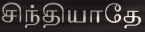
சிந்தியாதே